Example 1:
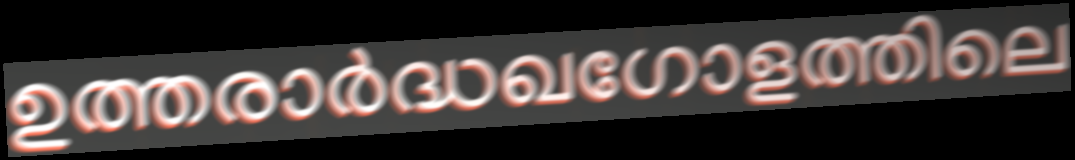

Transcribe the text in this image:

ഉത്തരാർദ്ധഖഗോളത്തിലെ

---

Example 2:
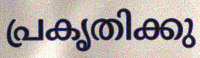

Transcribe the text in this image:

പ്രകൃതിക്കു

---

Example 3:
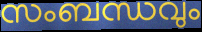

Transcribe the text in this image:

സംബന്ധവും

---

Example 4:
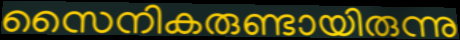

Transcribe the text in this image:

സൈനികരുണ്ടായിരുന്നു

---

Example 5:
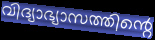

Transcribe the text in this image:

വിദ്യാഭ്യാസത്തിന്റെ